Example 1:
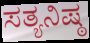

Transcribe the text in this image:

ಸತ್ಯನಿಷ್ಠ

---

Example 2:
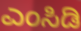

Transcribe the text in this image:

ಎಂಸಿಡಿ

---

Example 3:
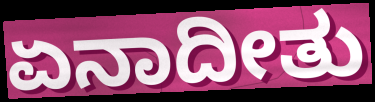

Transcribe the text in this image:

ಏನಾದೀತು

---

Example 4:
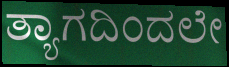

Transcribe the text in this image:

ತ್ಯಾಗದಿಂದಲೇ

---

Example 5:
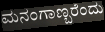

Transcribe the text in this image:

ಮನಂಗಾಣ್ಬರೆಂದು